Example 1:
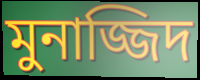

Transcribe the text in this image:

মুনাজ্জিদ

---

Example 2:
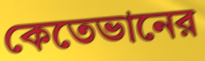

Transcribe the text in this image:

কেতেভানের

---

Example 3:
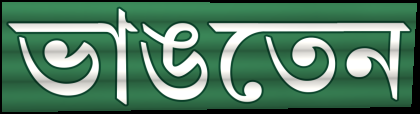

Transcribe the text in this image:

ভাঙতেন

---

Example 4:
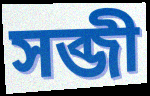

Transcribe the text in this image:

সব্জী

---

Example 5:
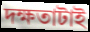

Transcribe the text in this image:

দক্ষতাটাই